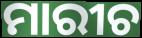
ମାରୀଚ